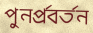
পুনর্প্রবর্তন